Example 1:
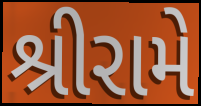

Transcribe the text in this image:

શ્રીરામે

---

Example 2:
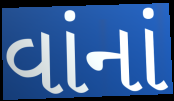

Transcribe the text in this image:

વાંનાં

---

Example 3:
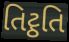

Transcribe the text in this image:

તિટ્ઠતિ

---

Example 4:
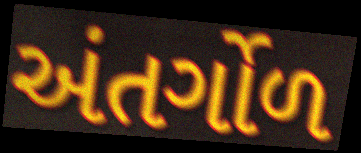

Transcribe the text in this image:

અંતર્ગોળ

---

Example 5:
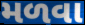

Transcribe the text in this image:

મળવા